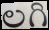
లగి